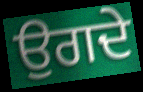
ਉਗਦੇ